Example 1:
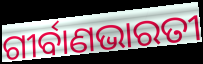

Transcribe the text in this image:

ଗୀର୍ବାଣଭାରତୀ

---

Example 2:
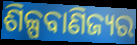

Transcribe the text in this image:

ଶିଳ୍ପବାଣିଜ୍ୟର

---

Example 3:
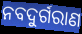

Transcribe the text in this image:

ନବଦୁର୍ଗରାଣ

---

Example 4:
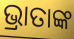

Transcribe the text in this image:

ଭ୍ରାତାଙ୍କ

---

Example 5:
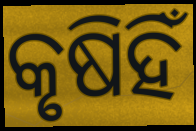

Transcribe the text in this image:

କୃଷିହିଁ